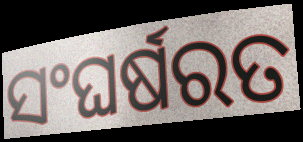
ସଂଘର୍ଷରତ